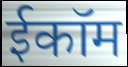
ईकॉम